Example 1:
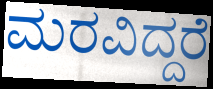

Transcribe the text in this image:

ಮರವಿದ್ದರೆ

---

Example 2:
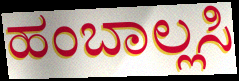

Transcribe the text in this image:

ಹಂಬಾಲ್ಲಸಿ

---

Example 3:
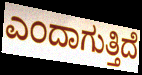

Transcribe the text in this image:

ಎಂದಾಗುತ್ತಿದೆ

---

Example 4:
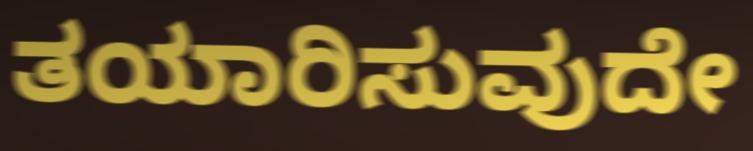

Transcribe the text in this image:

ತಯಾರಿಸುವುದೇ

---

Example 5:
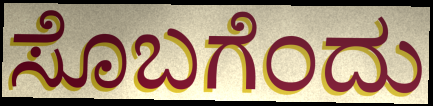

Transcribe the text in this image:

ಸೊಬಗೆಂದು